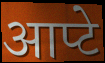
आप्टे